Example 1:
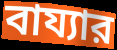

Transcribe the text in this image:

বায্যার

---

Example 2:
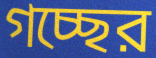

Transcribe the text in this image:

গচ্ছের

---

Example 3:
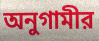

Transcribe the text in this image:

অনুগামীর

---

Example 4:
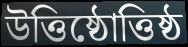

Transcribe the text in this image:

উত্তিষ্ঠোত্তিষ্ঠ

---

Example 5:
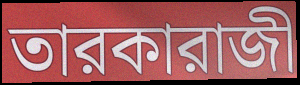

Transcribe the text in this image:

তারকারাজী